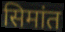
सिमांत